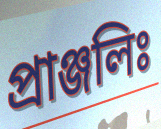
প্রাঞ্জলিঃ